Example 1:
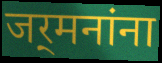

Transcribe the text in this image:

जर्मनांना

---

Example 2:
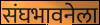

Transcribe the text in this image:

संघभावनेला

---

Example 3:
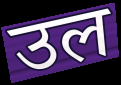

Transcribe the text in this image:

उल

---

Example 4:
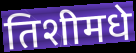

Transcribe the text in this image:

तिशीमधे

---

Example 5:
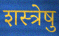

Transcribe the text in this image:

शस्त्रेषु